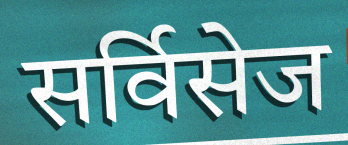
सर्विसेज